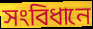
সংবিধানে